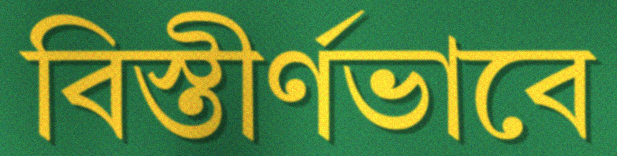
বিস্তীর্ণভাবে